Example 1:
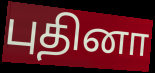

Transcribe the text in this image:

புதினா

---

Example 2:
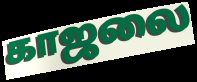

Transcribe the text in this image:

காஜலை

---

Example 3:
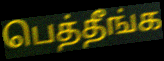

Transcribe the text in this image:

பெத்தீங்க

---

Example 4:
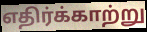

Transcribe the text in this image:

எதிர்க்காற்று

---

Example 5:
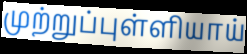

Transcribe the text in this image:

முற்றுப்புள்ளியாய்